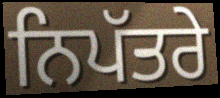
ਨਿਪੱਤਰੇ